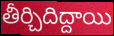
తీర్చిదిద్దాయి